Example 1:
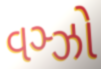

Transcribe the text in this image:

વઞ્ઝો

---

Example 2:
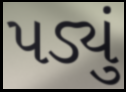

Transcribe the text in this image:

પડ્યું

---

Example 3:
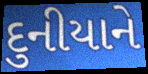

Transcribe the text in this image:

દુનીયાને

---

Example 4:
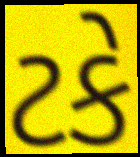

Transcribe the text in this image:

ટકે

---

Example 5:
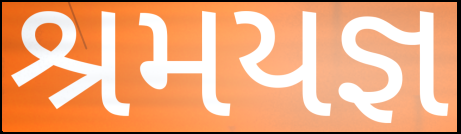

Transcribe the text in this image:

શ્રમયજ્ઞ